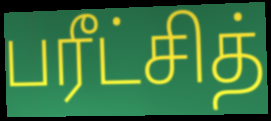
பரீட்சித்